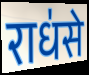
राध॑से